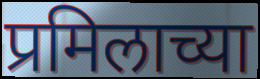
प्रमिलाच्या